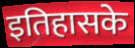
इतिहासके